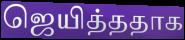
ஜெயித்ததாக